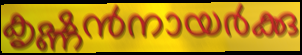
കൃഷ്ണൻനായർക്കു